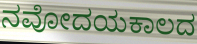
ನವೋದಯಕಾಲದ